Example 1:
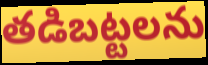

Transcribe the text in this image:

తడిబట్టలను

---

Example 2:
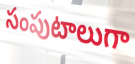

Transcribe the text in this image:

సంపుటాలుగా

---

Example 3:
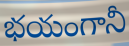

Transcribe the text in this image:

భయంగానీ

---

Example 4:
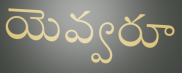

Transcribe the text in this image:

యెవ్వరూ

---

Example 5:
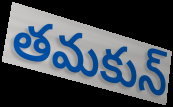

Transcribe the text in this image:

తమకున్